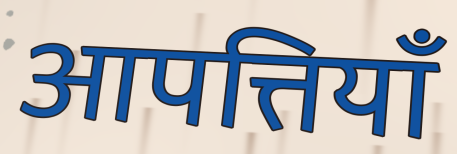
आपत्तियॉं